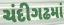
ચંદીગઢમાં